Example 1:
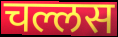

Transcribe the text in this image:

चल्लस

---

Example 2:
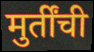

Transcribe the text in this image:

मुर्तींची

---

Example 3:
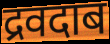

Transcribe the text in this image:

द्रवदाब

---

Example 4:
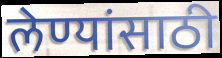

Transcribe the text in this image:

लेण्यांसाठी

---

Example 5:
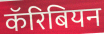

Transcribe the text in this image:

कॅरिबियन